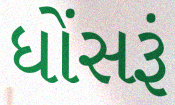
ધોંસરૂં